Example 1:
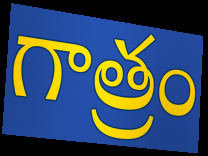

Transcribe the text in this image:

గాత్రం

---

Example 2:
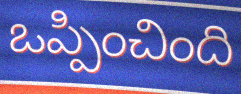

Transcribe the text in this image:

ఒప్పించింది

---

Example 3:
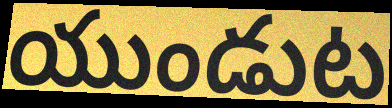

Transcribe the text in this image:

యుండుట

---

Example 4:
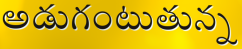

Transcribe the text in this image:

అడుగంటుతున్న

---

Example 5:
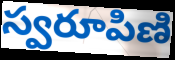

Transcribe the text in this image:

స్వరూపిణి